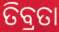
ତିବ୍ରତା